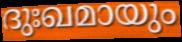
ദുഃഖമായും